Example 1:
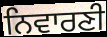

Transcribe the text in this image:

ਨਿਵਾਰਣੀ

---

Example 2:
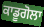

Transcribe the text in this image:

ਕਾਡੂਗੋਲਾ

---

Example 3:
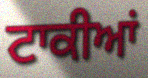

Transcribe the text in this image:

ਟਾਕੀਆਂ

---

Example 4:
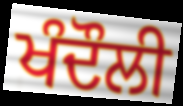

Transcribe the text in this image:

ਖੰਦੌਲੀ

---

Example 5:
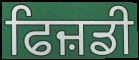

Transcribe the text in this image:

ਫਿਜ਼ਡੀ